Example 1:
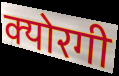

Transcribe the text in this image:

क्योरगी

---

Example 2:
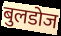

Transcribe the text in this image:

बुलडोज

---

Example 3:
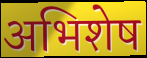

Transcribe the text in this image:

अभिशेष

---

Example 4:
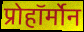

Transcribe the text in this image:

प्रोहॉर्मोन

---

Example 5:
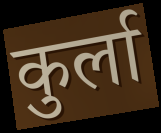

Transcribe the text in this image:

कुर्ला